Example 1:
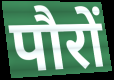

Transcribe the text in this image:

पौरों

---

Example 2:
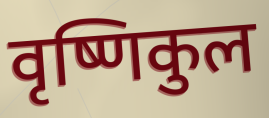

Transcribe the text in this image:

वृष्णिकुल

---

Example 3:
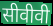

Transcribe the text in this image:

सीवीवी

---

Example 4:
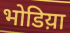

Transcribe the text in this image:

भोडिय़ा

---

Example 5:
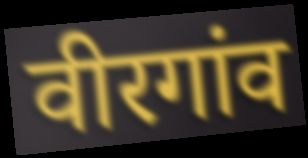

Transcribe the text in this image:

वीरगांव